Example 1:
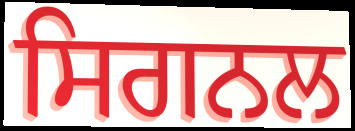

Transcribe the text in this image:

ਸਿਗਨਲ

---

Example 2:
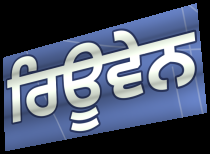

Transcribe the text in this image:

ਰਿਊਵੇਨ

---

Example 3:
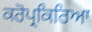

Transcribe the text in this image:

ਕਰੋਪ੍ਰਕਿਰਿਆ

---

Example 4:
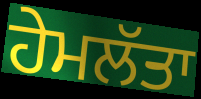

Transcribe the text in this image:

ਹੇਮਲੱਤਾ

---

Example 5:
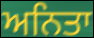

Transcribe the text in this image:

ਅਨਿਤਾ